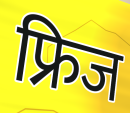
फ्रिज